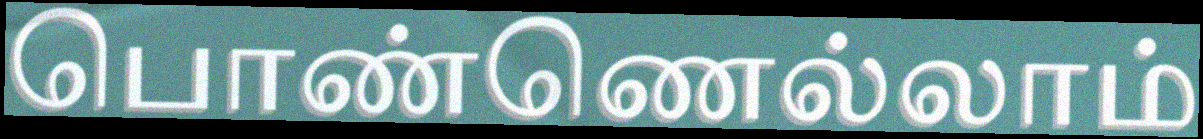
பொண்ணெல்லாம்